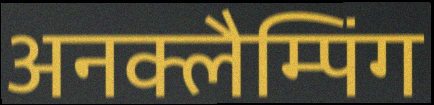
अनक्लैम्पिंग